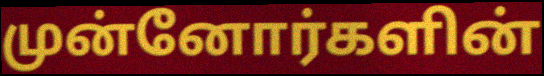
முன்னோர்களின்